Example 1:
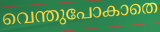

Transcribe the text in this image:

വെന്തുപോകാതെ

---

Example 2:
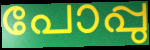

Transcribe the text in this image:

പോപ്പു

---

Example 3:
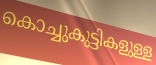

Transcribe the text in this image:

കൊച്ചുകുട്ടികളുള്ള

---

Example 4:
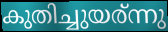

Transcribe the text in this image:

കുതിച്ചുയര്ന്നു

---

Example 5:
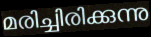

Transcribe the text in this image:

മരിച്ചിരിക്കുന്നു